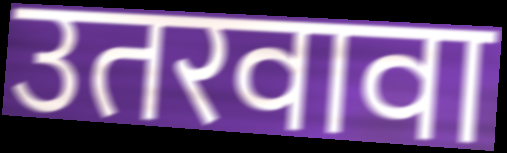
उतरवावा